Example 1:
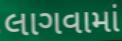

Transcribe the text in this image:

લાગવામાં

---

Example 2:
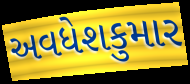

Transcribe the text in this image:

અવધેશકુમાર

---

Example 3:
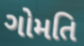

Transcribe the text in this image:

ગોમતિ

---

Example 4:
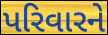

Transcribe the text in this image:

પરિવારને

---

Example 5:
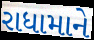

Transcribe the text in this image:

રાધામાને